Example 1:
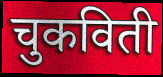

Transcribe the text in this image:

चुकविती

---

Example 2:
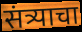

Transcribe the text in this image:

संत्र्याचा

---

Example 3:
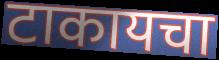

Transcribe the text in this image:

टाकायचा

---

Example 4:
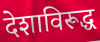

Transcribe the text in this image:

देशाविरूद्ध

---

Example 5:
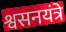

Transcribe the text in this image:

श्वसनयंत्रे